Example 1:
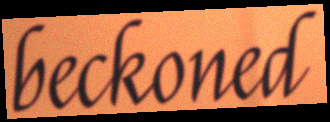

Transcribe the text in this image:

beckoned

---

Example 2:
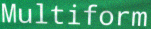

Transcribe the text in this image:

Multiform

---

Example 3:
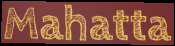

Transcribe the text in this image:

Mahatta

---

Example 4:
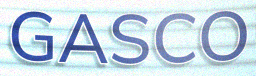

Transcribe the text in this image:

GASCO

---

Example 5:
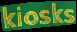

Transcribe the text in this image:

kiosks